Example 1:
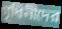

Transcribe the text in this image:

গৃধিনীদের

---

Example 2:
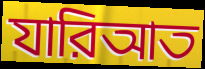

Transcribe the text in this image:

যারিআত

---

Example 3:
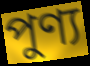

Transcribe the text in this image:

পুণ্য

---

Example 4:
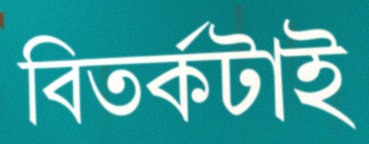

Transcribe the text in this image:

বিতর্কটাই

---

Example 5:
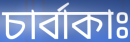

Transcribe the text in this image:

চার্বাকাঃ